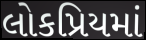
લોકપ્રિયમાં